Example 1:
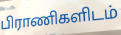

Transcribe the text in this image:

பிராணிகளிடம்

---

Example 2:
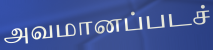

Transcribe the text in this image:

அவமானப்படச்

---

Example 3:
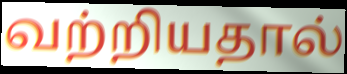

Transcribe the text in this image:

வற்றியதால்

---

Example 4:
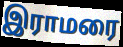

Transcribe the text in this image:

இராமரை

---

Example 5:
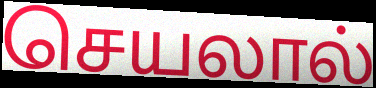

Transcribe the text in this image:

செயலால்